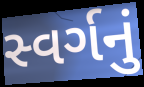
સ્વર્ગનું